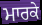
ਮਾਰਕੇ